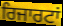
ਰਿਜਾਰਟਾਂ